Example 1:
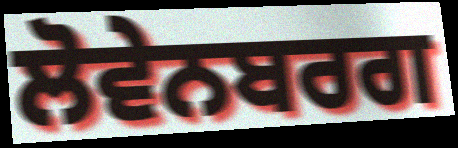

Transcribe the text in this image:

ਲੋਵੇਨਬਰਗ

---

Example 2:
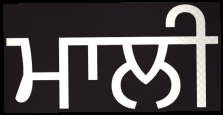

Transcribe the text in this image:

ਮਾਲੀ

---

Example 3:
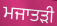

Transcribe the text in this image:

ਮਜਾਤੜੀ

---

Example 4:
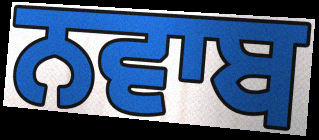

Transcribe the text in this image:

ਨਵਾਬ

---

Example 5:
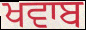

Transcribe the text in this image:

ਖਵਾਬ